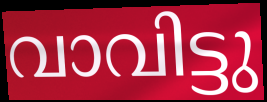
വാവിട്ടു